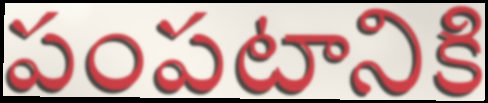
పంపటానికి